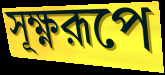
সূক্ষ্ণরূপে